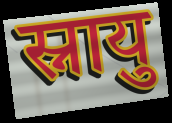
स्नायु